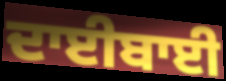
ਦਾਈਬਾਈ